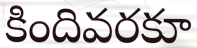
కిందివరకూ